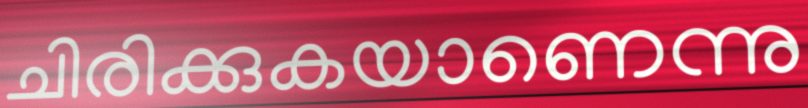
ചിരിക്കുകയാണെന്നു